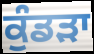
ਕੁੰਡੜਾ